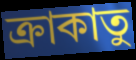
ক্রাকাতু